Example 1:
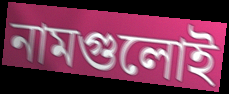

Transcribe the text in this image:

নামগুলোই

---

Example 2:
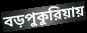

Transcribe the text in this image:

বড়পুকুরিয়ায়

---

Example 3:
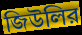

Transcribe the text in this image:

জিউলির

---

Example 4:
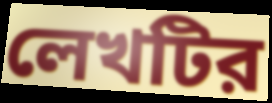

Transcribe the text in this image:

লেখটির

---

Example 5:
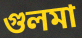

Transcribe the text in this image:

গুলমা